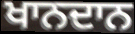
ਖਾਨਦਾਨ